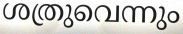
ശത്രുവെന്നും